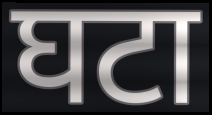
घटा